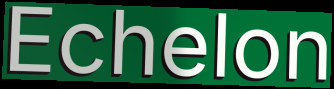
Echelon